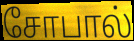
சோபால்